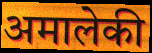
अमालेकी